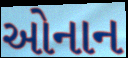
ઓનાન